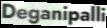
Deganipalli